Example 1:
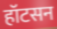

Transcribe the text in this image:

हॉटसन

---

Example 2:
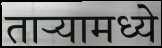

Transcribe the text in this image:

ताऱ्यामध्ये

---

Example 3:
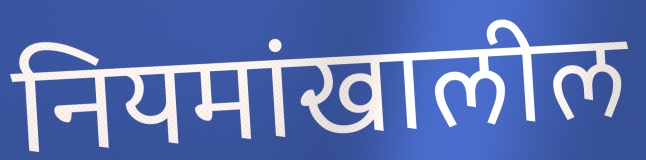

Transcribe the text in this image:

नियमांखालील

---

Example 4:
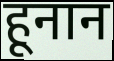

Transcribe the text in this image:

हूनान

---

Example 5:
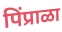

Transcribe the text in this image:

पिंप्राळा